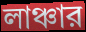
লাঞ্চার